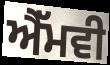
ਐੱਮਵੀ